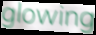
glowing